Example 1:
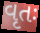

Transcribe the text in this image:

વૃતઃ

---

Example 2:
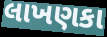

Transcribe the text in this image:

લાખણકા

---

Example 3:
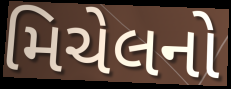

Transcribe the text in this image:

મિચેલનો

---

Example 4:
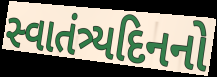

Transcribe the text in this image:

સ્વાતંત્ર્યદિનનો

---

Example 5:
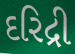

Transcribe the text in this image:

દરિદ્રી